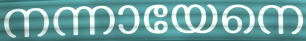
നന്നായേനെ